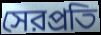
সেরপ্রতি